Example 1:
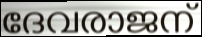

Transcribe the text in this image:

ദേവരാജന്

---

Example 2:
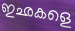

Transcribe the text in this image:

ഇഛകളെ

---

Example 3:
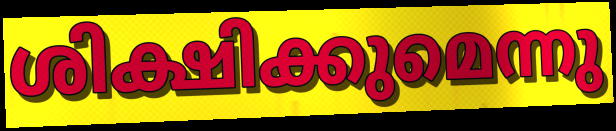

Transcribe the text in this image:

ശിക്ഷിക്കുമെന്നു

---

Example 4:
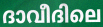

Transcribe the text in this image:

ദാവീദിലെ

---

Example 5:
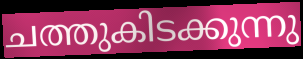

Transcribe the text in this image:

ചത്തുകിടക്കുന്നു